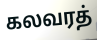
கலவரத்